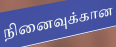
நினைவுக்கான